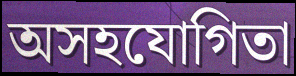
অসহযোগিতা